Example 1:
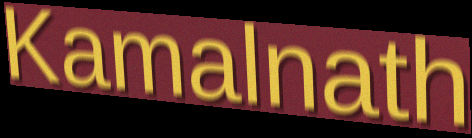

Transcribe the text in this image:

Kamalnath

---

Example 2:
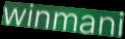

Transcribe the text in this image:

winmani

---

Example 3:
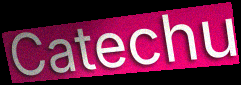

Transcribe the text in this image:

Catechu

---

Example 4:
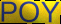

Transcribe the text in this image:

POY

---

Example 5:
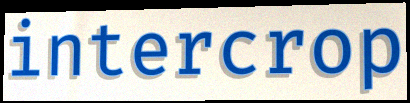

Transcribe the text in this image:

intercrop